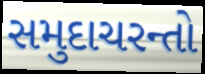
સમુદાચરન્તો